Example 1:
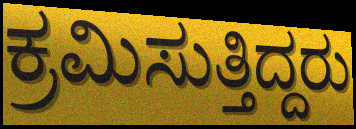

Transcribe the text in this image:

ಕ್ರಮಿಸುತ್ತಿದ್ದರು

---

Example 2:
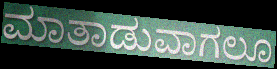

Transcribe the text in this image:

ಮಾತಾಡುವಾಗಲೂ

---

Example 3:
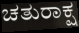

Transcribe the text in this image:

ಚತುರಾಕ್ಷ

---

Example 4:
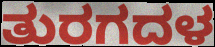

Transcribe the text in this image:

ತುರಗದಳ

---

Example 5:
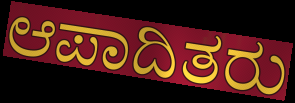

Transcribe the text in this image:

ಆಪಾದಿತರು